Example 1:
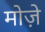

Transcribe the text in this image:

मोज़े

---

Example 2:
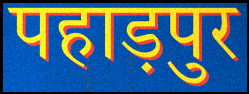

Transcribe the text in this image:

पहाड़पुर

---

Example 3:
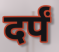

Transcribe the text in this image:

दर्पं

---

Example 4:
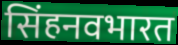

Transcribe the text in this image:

सिंहनवभारत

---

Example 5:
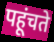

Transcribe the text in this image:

पहूंचते